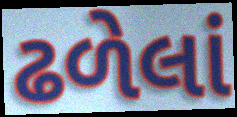
ઢળેલાં